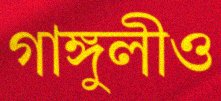
গাঙ্গুলীও